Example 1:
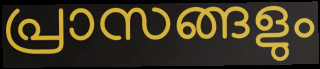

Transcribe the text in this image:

പ്രാസങ്ങളും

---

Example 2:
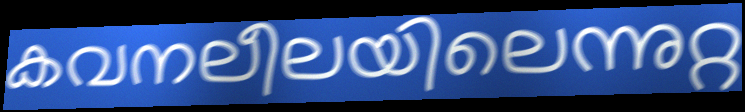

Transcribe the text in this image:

കവനലീലയിലെന്നുറ്റ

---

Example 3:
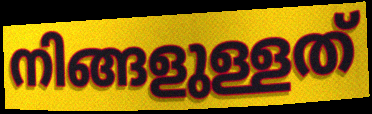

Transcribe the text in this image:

നിങ്ങളുള്ളത്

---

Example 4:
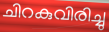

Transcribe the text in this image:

ചിറകുവിരിച്ചു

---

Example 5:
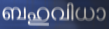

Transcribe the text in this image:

ബഹുവിധാ